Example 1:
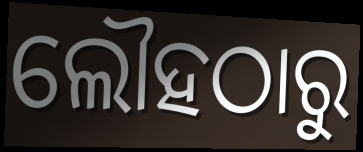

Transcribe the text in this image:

ଲୌହଠାରୁ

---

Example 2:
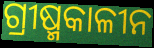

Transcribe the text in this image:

ଗ୍ରୀଷ୍ମକାଳୀନ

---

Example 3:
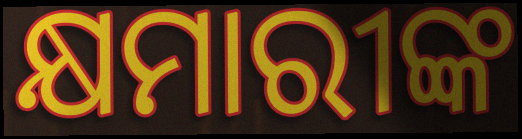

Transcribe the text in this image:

କ୍ଷମାରୀଙ୍କ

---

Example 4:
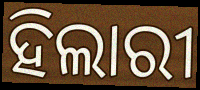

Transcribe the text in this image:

ହିଲାରୀ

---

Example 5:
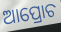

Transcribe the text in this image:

ଆପ୍ରୋଚ